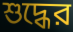
শুদ্ধের